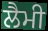
ਲੈਮੀ